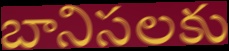
బానిసలకు